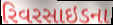
રિવરસાઇડના